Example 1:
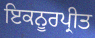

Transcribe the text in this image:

ਇਕਨੂਰਪ੍ਰੀਤ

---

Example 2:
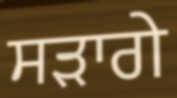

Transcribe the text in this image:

ਸੜਾਗੇ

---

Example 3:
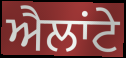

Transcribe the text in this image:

ਐਲਾਂਟੇ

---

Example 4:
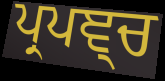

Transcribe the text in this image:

ਪ੍ਰਪਞ੍ਚ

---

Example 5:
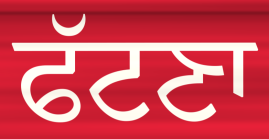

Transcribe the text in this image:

ਫੱਟਣਾ